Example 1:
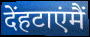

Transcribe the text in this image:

देंहटाएंमैं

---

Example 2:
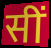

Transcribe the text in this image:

सीं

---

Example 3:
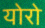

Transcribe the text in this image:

योरो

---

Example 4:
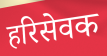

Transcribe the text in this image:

हरिसेवक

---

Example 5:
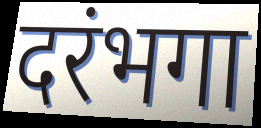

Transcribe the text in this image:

दरंभगा